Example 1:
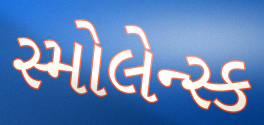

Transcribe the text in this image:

સ્મોલેન્સ્ક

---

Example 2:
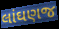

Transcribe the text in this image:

લાંઘણજ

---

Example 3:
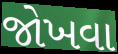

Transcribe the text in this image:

જોખવા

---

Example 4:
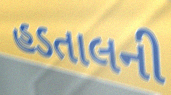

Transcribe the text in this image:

હડતાલની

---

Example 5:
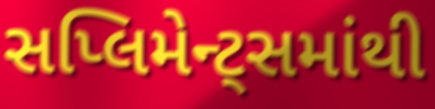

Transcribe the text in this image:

સપ્લિમેન્ટ્સમાંથી